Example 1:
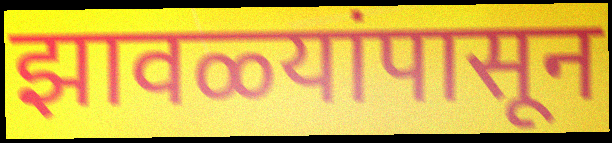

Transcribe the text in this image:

झावळ्यांपासून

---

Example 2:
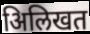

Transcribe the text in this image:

अिलिखत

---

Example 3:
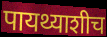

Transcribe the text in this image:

पायथ्याशीच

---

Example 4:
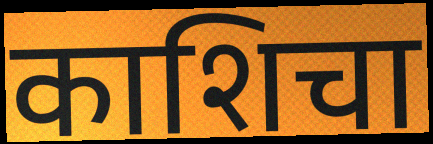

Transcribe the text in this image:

काशिचा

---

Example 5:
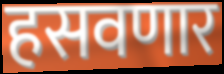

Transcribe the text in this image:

हसवणार